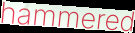
hammered